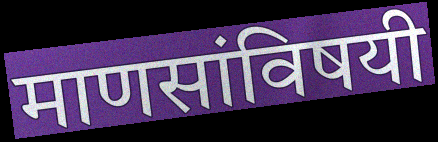
माणसांविषयी